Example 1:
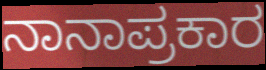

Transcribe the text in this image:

ನಾನಾಪ್ರಕಾರ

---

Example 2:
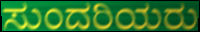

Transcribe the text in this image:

ಸುಂದರಿಯರು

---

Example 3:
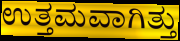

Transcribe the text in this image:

ಉತ್ತಮವಾಗಿತ್ತು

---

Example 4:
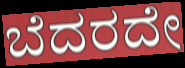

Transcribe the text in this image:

ಬೆದರದೇ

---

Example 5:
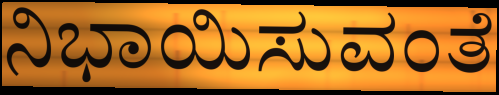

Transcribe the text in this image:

ನಿಭಾಯಿಸುವಂತೆ